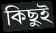
কিছুই